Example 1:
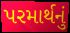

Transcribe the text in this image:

પરમાર્થનું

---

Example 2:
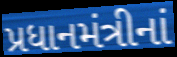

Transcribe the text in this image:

પ્રધાનમંત્રીનાં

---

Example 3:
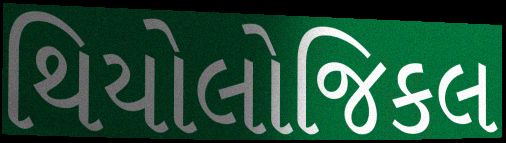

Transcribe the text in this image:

થિયોલોજિકલ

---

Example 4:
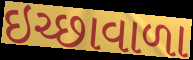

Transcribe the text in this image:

ઇચ્છાવાળા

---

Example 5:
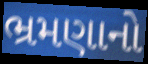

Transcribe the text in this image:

ભ્રમણાનો